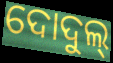
ଦୋଦୁଲ୍